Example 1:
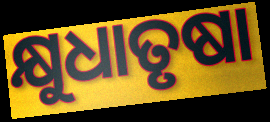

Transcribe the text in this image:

କ୍ଷୁଧାତୃଷା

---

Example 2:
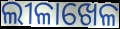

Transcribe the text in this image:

ଲୀଳାଖେଳ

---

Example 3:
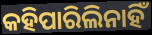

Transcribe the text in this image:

କହିପାରିଲିନାହିଁ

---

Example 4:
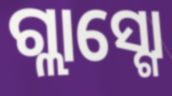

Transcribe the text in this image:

ଗ୍ଲାସ୍ଗୋ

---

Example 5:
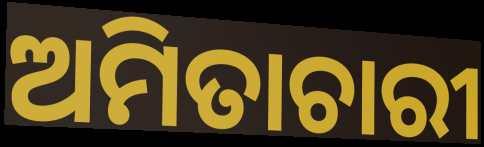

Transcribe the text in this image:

ଅମିତାଚାରୀ